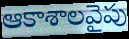
ఆకాశాలవైపు